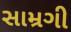
સામ્રગી